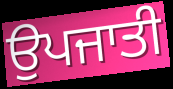
ਉਪਜਾਤੀ